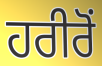
ਹਰੀਰੋਂ